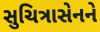
સુચિત્રાસેનને